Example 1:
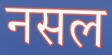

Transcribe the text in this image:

नसल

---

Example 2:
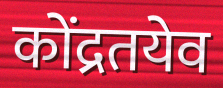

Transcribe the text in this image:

कोंद्रतयेव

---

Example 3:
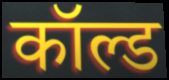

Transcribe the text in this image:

कॉल्ड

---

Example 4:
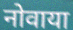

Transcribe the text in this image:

नोवाया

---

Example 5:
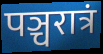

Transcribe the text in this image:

पञ्चरात्रं